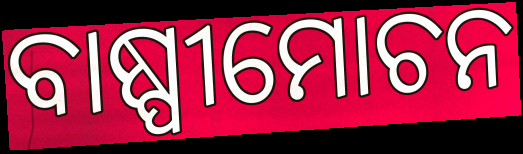
ବାଷ୍ପୀମୋଚନ